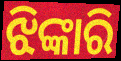
ଝିଙ୍କାରି